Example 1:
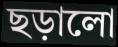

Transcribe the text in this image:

ছড়ালো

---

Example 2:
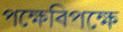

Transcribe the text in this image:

পক্ষেবিপক্ষে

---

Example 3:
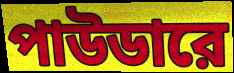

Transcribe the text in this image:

পাউডারে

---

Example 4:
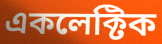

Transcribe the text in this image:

একলেক্টিক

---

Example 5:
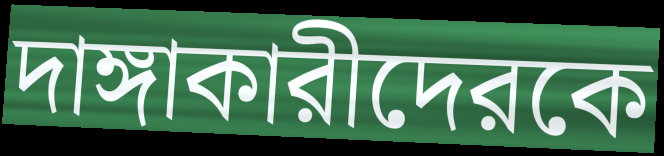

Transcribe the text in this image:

দাঙ্গাকারীদেরকে